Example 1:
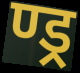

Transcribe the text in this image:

ण्ड्र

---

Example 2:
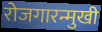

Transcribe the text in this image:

रोजगारन्मुखी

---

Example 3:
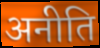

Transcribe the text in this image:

अनीति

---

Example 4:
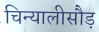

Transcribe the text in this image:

चिन्यालीसौड़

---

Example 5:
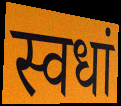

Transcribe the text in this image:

स्वधां